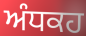
ਅੰਧਕਹ